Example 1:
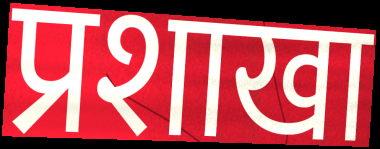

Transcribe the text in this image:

प्रशाखा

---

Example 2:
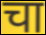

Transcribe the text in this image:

चा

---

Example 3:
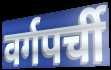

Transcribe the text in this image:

वर्गपर्ची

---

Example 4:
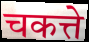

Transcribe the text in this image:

चकत्ते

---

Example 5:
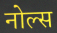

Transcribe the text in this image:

नोल्स